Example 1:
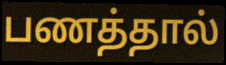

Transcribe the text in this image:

பணத்தால்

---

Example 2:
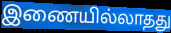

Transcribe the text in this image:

இணையில்லாதது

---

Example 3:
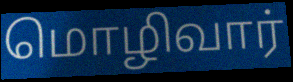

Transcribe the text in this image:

மொழிவார்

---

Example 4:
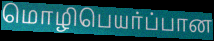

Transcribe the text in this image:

மொழிபெயர்ப்பான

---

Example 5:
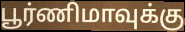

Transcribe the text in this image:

பூர்ணிமாவுக்கு